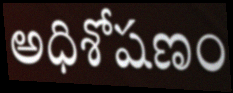
అధిశోషణం